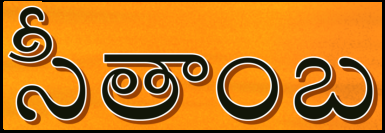
సీతాంబ